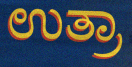
ಉತ್ರಾ